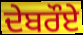
ਦੇਬਰੌਏ